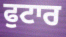
ਫੁਟਾਰ